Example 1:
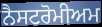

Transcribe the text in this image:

ਨੈਸਟਰੋਮੀਅਮ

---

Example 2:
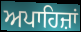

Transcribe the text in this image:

ਅਪਾਹਿਜ਼ਾਂ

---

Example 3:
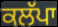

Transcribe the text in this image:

ਕਲੱਪਾ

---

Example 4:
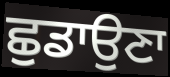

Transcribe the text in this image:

ਛੁਡਾਉਣਾ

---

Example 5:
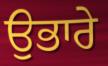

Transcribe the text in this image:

ਉਭਾਰੇ